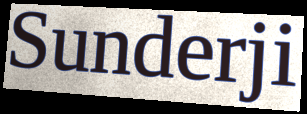
Sunderji